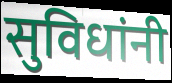
सुविधांनी